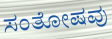
ಸಂತೋಷವು